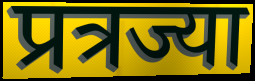
प्रत्रज्या